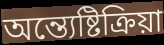
অন্ত্যেষ্টিক্ৰিয়া